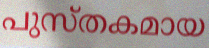
പുസ്തകമായ